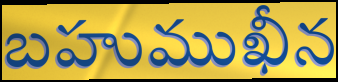
బహుముఖీన